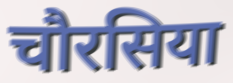
चौरसिया